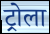
ट्रोला